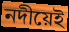
নদীয়েই